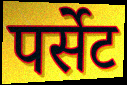
पर्सेट